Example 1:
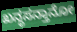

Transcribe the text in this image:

ಖನ್ಧಸನ್ತಾನೋ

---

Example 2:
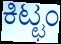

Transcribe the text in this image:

ಕಿಟ್ಟಂ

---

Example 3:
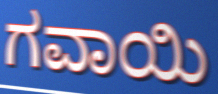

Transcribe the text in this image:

ಗವಾಯಿ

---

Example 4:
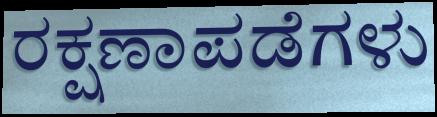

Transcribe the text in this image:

ರಕ್ಷಣಾಪಡೆಗಳು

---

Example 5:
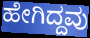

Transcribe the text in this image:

ಹೇಗಿದ್ದವು